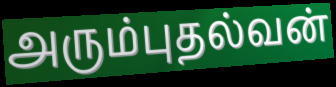
அரும்புதல்வன்